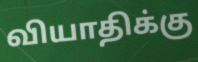
வியாதிக்கு